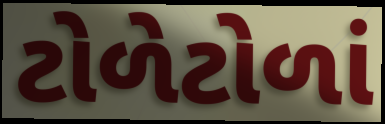
ટોળેટોળાં